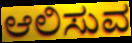
ಆಲಿಸುವ